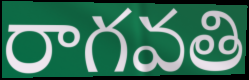
రాగవతి